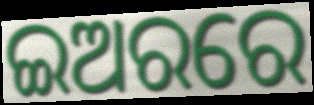
ଇଅରରେ